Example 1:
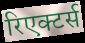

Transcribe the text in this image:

रिएक्टर्स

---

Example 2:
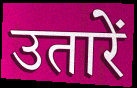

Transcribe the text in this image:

उतारें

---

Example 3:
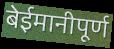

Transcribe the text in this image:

बेईमानीपूर्ण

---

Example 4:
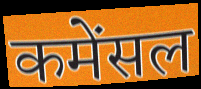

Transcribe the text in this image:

कमेंसल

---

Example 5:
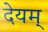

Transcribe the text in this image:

देयम्